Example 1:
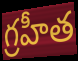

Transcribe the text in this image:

గ్రహీత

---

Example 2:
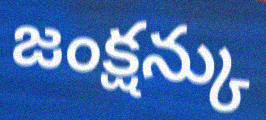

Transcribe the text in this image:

జంక్షన్కు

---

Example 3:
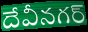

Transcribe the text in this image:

దేవీనగర్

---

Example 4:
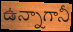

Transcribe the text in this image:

ఉన్నాగానీ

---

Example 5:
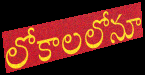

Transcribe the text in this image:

లోకాలలోనూ